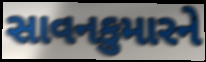
સાવનકુમારને